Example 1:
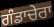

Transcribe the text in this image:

ਗੰਡਾਚੇਰਾ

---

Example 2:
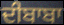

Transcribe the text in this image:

ਦੀਬਾਬਾ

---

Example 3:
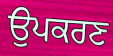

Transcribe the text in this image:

ਉਪਕਰਣ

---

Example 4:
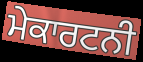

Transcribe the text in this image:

ਮੇਕਾਰਟਨੀ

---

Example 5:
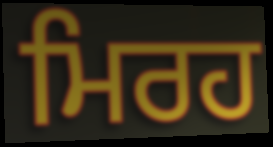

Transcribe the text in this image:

ਮਿਰਹ